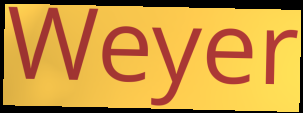
Weyer